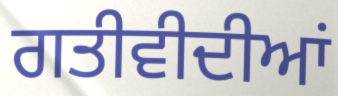
ਗਤੀਵੀਦੀਆਂ